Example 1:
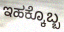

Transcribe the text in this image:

ಇಹಕ್ಕೊಬ್ಬ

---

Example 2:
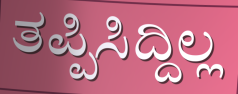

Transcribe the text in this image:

ತಪ್ಪಿಸಿದ್ದಿಲ್ಲ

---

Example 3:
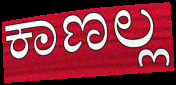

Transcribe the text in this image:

ಕಾಣಲ್ಲ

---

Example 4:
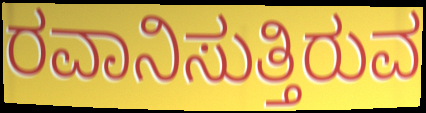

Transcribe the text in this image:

ರವಾನಿಸುತ್ತಿರುವ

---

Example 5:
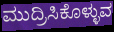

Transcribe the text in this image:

ಮುದ್ರಿಸಿಕೊಳ್ಳುವ